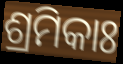
ଶ୍ରମିକାଃ